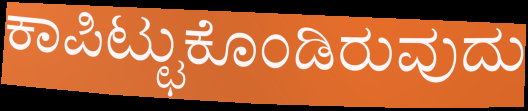
ಕಾಪಿಟ್ಟುಕೊಂಡಿರುವುದು